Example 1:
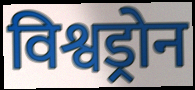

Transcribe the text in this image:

विश्वड्रोन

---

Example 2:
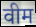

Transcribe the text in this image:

वीम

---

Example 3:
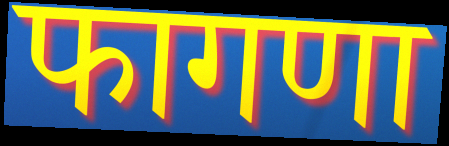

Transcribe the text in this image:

फागणा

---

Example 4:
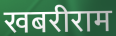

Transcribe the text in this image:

खबरीराम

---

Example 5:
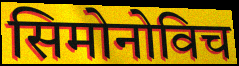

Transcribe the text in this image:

सिमोनोविच